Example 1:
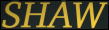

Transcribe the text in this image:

SHAW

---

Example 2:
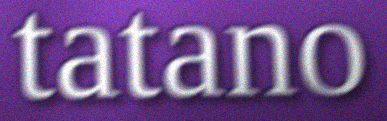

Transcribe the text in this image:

tatano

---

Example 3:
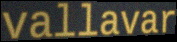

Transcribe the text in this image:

vallavar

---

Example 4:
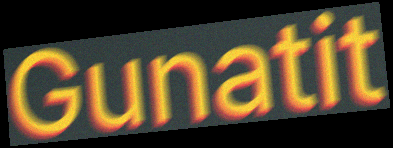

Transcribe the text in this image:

Gunatit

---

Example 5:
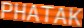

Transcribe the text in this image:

PHATAK